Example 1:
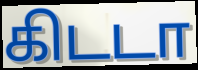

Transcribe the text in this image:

கிடடா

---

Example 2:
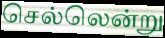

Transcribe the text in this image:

செல்லென்று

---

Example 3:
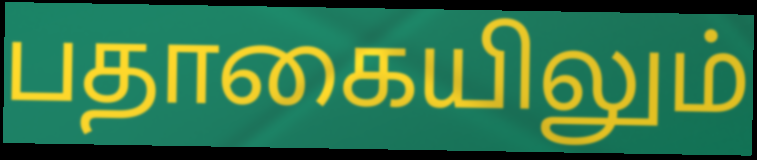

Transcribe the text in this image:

பதாகையிலும்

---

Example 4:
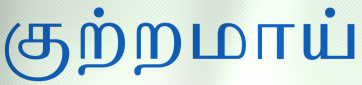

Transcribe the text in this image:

குற்றமாய்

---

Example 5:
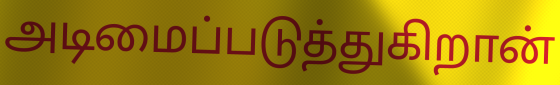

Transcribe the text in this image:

அடிமைப்படுத்துகிறான்